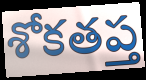
శోకతప్త